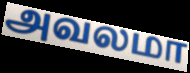
அவலமா